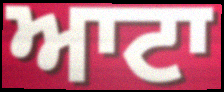
ਆਟਾ